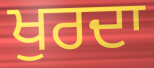
ਖੁਰਦਾ